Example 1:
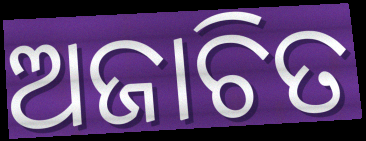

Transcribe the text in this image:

ଅଜାଚିତ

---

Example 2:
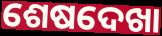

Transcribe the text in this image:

ଶେଷଦେଖା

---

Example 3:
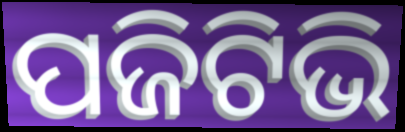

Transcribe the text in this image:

ପଜିଟିଭି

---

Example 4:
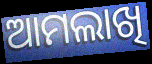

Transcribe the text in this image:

ଆମଲାଖି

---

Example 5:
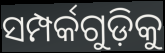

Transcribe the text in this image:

ସମ୍ପର୍କଗୁଡ଼ିକୁ